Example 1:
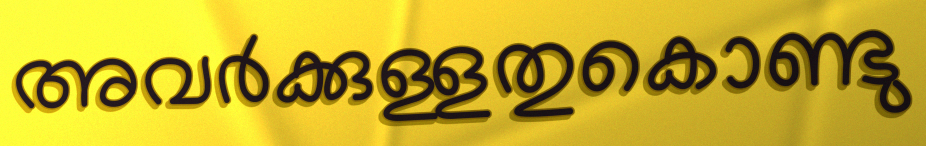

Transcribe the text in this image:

അവർക്കുള്ളതുകൊണ്ടു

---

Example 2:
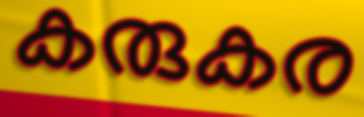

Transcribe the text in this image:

കരുകര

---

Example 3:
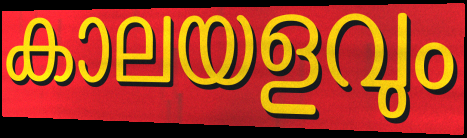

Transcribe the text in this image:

കാലയളവും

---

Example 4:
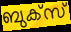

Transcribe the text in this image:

ബുക്സ്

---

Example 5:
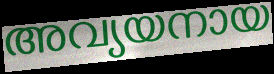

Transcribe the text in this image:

അവ്യയനായ